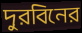
দুরবিনের